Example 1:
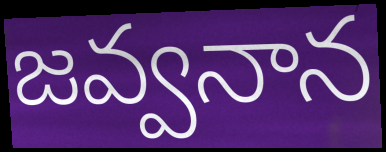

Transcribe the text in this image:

జవ్వనాన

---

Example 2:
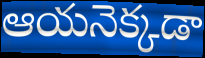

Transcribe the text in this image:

ఆయనెక్కడా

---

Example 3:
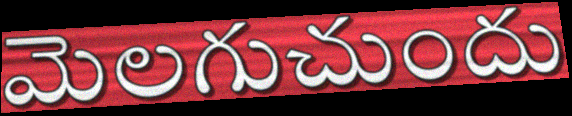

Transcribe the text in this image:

మెలగుచుందు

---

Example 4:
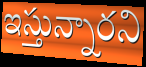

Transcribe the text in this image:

ఇస్తున్నారని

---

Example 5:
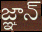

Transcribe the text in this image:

జ్ఞాన్